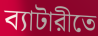
ব্যাটারীতে